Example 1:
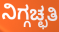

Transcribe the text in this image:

ನಿಗ್ಗಚ್ಛತಿ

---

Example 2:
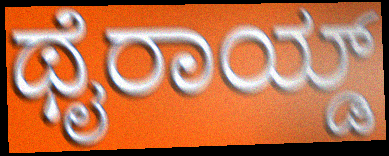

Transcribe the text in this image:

ಥೈರಾಯ್ಡ್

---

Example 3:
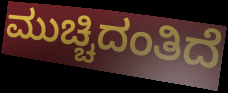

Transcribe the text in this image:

ಮುಚ್ಚಿದಂತಿದೆ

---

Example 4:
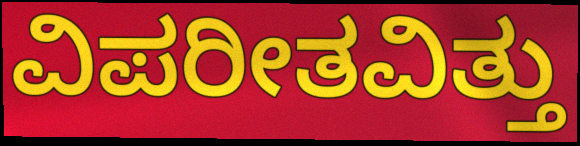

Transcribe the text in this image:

ವಿಪರೀತವಿತ್ತು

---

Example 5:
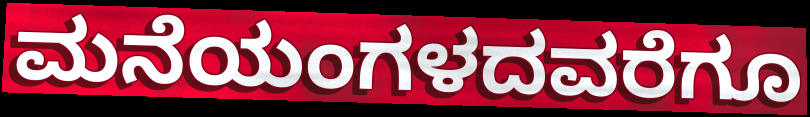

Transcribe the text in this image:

ಮನೆಯಂಗಳದವರೆಗೂ